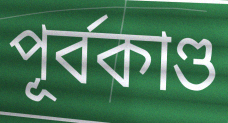
পূর্বকাণ্ড